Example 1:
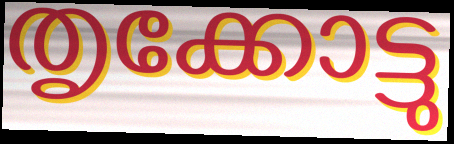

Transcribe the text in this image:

തൃക്കോട്ടു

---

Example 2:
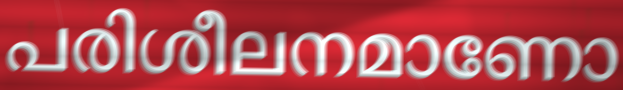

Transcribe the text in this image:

പരിശീലനമാണോ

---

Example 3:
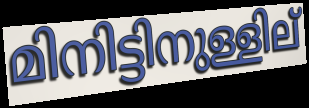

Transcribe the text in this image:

മിനിട്ടിനുള്ളില്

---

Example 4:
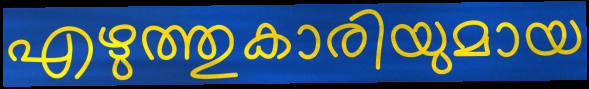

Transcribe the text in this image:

എഴുത്തുകാരിയുമായ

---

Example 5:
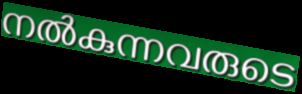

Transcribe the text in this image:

നൽകുന്നവരുടെ